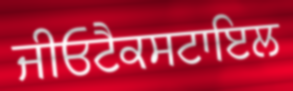
ਜੀਓਟੈਕਸਟਾਇਲ